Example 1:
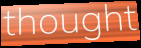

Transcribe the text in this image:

thought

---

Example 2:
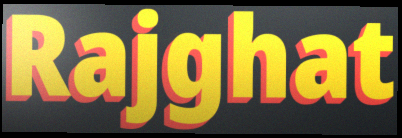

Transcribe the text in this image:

Rajghat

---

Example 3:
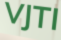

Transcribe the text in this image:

VJTI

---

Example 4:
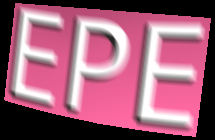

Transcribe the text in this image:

EPE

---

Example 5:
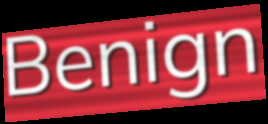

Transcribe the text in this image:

Benign